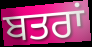
ਬਤਰਾਂ